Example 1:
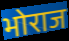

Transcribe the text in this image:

भोराज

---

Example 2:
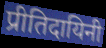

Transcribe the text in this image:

प्रीतिदायिनी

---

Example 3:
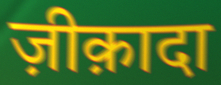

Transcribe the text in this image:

ज़ीक़ादा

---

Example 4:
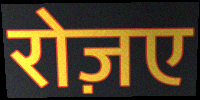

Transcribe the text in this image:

रोज़ए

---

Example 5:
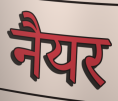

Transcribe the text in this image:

नैयर